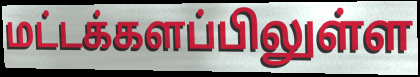
மட்டக்களப்பிலுள்ள